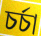
চৰ্চা